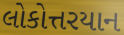
લોકોત્તરયાન